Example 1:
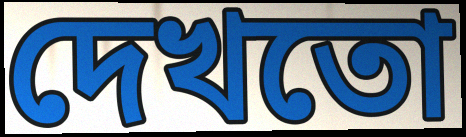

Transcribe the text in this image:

দেখতো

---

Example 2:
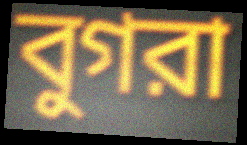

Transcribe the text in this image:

বুগরা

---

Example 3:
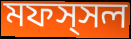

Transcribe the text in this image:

মফস্‌সল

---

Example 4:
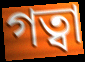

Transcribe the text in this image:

গত্বা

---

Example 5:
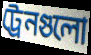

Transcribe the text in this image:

ট্রেনগুলো